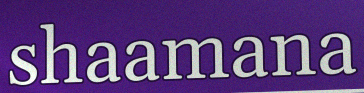
shaamana